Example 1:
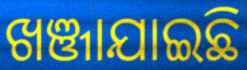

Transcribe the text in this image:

ଖଞ୍ଜାଯାଇଛି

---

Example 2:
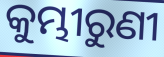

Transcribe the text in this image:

କୁମ୍ଭୀରୁଣୀ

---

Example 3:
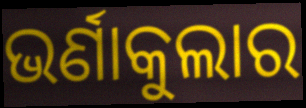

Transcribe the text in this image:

ଭର୍ଣାକୁଲାର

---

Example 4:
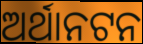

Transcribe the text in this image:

ଅର୍ଥାନଟନ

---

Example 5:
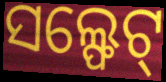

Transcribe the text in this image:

ସଲ୍ଫେଟ୍